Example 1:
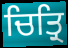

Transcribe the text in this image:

ਚਿਤ੍ਰਿ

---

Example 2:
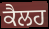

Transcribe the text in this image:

ਕੈਲਹ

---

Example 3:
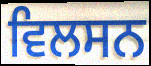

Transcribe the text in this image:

ਵਿਲਸਨ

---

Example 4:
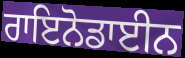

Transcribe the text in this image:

ਰਾਇਨੋਡਾਈਨ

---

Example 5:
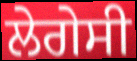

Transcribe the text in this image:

ਲੇਗੇਸੀ